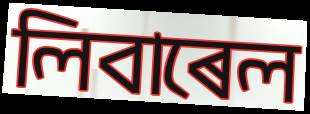
লিবাৰেল